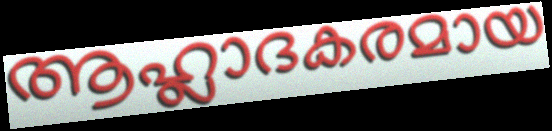
ആഹ്ലാദകരമായ